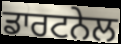
ਡਾਰਟਨੇਲ